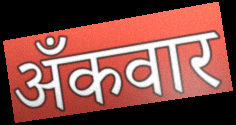
अँकवार